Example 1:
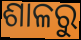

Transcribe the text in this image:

ଶାଳରୁ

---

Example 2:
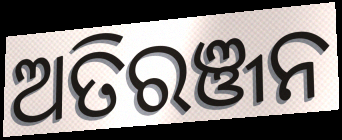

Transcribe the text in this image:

ଅତିରଞ୍ଜନ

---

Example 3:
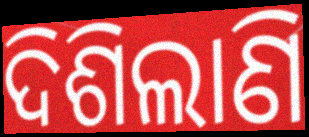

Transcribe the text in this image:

ଦିଶିଲାଣି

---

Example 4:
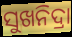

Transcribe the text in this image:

ସୁଖନିଦ୍ରା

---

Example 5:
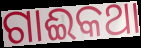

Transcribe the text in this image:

ଗାଈକଥା